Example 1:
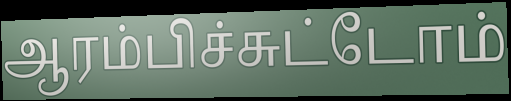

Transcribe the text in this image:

ஆரம்பிச்சுட்டோம்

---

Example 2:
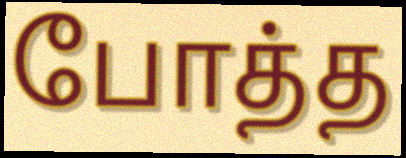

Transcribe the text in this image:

போத்த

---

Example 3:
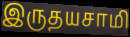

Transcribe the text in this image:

இருதயசாமி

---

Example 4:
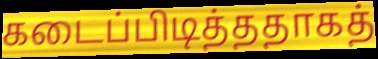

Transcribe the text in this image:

கடைப்பிடித்ததாகத்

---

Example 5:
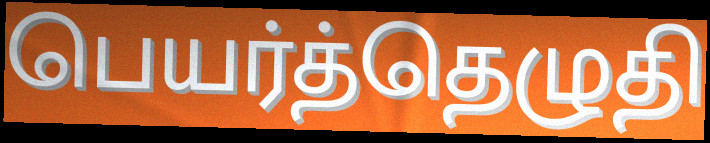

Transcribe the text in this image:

பெயர்த்தெழுதி